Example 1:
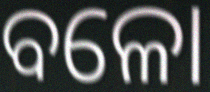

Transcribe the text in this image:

ବଳୋ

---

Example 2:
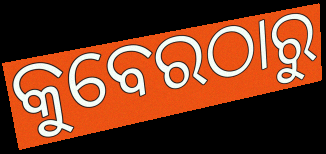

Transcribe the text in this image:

କୁବେରଠାରୁ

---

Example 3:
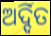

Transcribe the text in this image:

ଅର୍ଦ୍ଦିତ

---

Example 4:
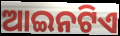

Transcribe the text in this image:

ଆଇନଟିଏ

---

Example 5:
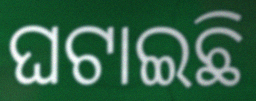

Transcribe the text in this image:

ଘଟାଇଛି